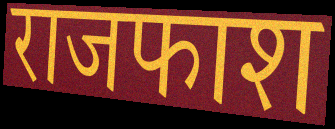
राजफाश